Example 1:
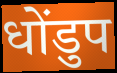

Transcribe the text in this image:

धोंडुप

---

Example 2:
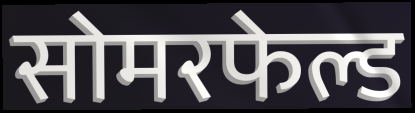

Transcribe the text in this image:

सोमरफेल्ड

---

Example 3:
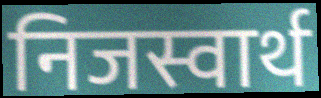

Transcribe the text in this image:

निजस्वार्थ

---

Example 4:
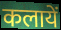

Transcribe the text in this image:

कलायें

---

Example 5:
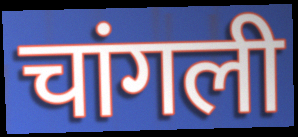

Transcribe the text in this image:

चांगली